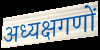
अध्यक्षगणों